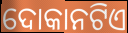
ଦୋକାନଟିଏ